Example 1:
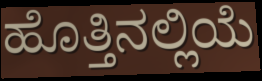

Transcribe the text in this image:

ಹೊತ್ತಿನಲ್ಲಿಯೆ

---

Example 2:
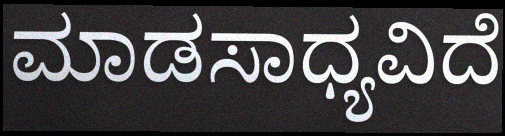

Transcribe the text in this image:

ಮಾಡಸಾಧ್ಯವಿದೆ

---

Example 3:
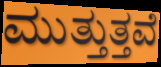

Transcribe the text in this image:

ಮುತ್ತುತ್ತವೆ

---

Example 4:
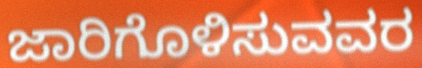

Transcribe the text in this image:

ಜಾರಿಗೊಳಿಸುವವರ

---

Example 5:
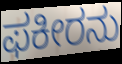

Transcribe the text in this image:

ಫಕೀರನು